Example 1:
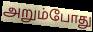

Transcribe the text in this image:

அறும்போது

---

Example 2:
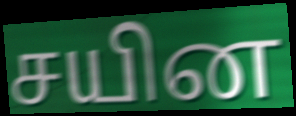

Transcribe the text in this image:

சயின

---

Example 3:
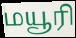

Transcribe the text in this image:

மயூரி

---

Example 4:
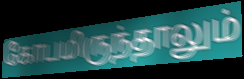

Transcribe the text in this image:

கோபமிருந்தாலும்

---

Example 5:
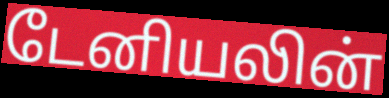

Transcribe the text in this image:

டேனியலின்